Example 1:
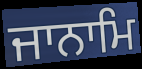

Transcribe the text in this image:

ਜਾਨਾਮਿ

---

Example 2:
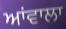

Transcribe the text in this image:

ਆਂਵਾਲਾ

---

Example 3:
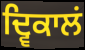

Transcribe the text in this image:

ਦ੍ਵਿਕਾਲਂ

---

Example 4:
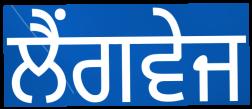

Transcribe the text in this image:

ਲੈਂਗਵੇਜ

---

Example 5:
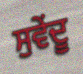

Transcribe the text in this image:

ਸੁਵੇਂਦੂ